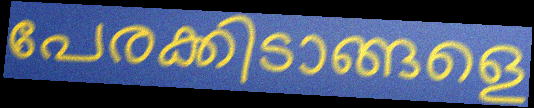
പേരക്കിടാങ്ങളെ